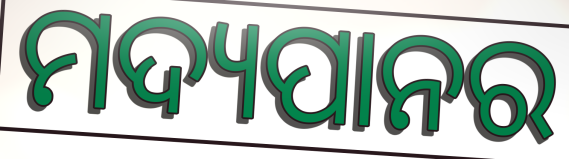
ମଦ୍ୟପାନର